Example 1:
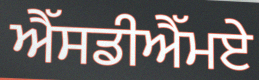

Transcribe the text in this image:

ਐੱਸਡੀਐੱਮਏ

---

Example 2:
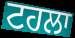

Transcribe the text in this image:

ਟਹਲਾ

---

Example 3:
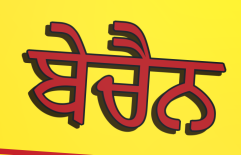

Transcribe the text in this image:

ਬੇਚੈਨ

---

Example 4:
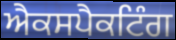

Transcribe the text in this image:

ਐਕਸਪੈਕਟਿੰਗ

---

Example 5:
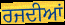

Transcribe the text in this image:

ਰਜਦੀਆਂ